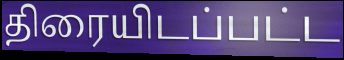
திரையிடப்பட்ட